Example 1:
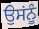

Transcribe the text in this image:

ਉਸਂਨੂੰ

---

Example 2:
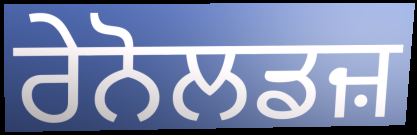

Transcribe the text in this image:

ਰੇਨੋਲਡਜ਼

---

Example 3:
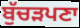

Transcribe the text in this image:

ਬੁੱਚੜਪਣਾ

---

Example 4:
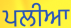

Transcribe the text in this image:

ਪਲੀਆ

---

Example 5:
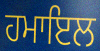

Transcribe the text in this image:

ਹਮਾਇਲ